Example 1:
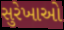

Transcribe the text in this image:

સુરેખાઓ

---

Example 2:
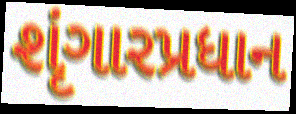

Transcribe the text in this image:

શૃંગારપ્રધાન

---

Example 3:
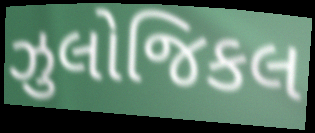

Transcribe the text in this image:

ઝુલોજિકલ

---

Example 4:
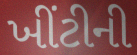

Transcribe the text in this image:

ખીંટીની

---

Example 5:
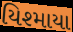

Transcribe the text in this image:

યિશ્માયા